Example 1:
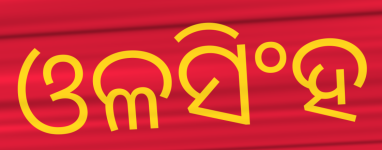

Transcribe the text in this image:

ଓଳସିଂହ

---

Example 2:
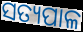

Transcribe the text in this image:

ସତ୍ୟପାଳ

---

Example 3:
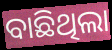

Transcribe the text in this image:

ବାଛିଥିଲା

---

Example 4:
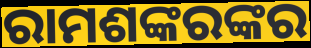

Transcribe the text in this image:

ରାମଶଙ୍କରଙ୍କର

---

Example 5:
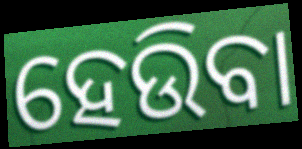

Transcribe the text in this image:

ହେଉିବା